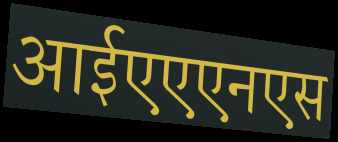
आईएएएनएस